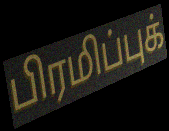
பிரமிப்புக்